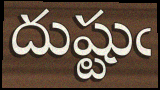
దుష్టుఁ